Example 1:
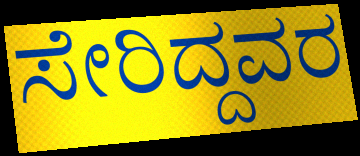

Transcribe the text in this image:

ಸೇರಿದ್ದವರ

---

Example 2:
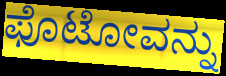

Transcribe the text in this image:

ಫೊಟೋವನ್ನು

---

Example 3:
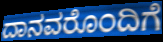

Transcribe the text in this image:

ದಾನವರೊಂದಿಗೆ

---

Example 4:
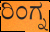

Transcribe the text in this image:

ರಿಂಗ್ನ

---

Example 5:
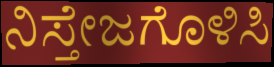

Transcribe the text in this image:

ನಿಸ್ತೇಜಗೊಳಿಸಿ